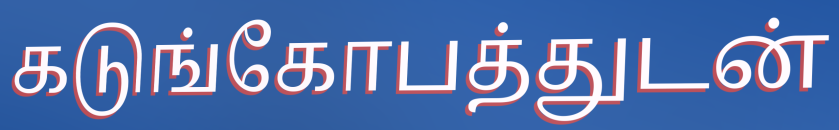
கடுங்கோபத்துடன்